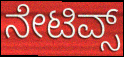
ನೇಟಿವ್ಸ್